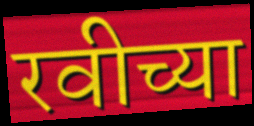
रवीच्या